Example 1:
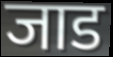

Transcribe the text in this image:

जाड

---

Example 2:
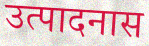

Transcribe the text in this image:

उत्पादनास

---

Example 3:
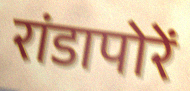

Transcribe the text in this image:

रांडापोरें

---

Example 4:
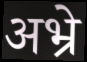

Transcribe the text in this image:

अभ्रे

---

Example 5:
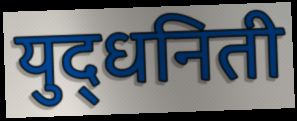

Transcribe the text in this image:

युद्धनिती